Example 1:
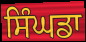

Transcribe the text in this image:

ਸਿੰਘਡਾ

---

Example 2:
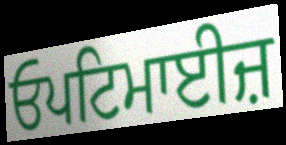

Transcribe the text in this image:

ਓਪਟਿਮਾਈਜ਼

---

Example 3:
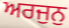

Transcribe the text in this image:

ਅਰਜੁਨੁ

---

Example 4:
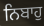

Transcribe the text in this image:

ਨਿਬਾਹੁ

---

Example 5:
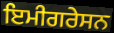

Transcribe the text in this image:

ਇਮੀਗਰੇਸਨ